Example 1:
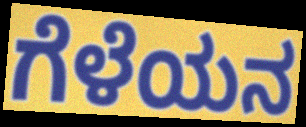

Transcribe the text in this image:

ಗೆಳೆಯನ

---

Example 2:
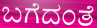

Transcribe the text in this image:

ಬಗೆದಂತೆ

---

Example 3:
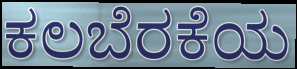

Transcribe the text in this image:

ಕಲಬೆರಕೆಯ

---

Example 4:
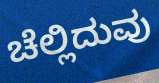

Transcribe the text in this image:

ಚೆಲ್ಲಿದುವು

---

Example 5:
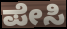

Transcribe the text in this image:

ಪೇಸಿ